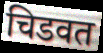
चिडवत